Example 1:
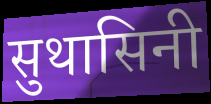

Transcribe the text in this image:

सुथासिनी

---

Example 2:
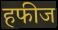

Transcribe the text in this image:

हफीज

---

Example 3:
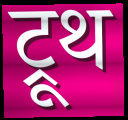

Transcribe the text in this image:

ट्रूथ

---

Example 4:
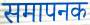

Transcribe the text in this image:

समापनक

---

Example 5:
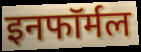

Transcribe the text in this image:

इनफॉर्मल